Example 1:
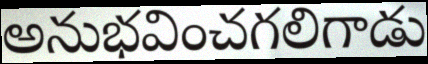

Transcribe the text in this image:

అనుభవించగలిగాడు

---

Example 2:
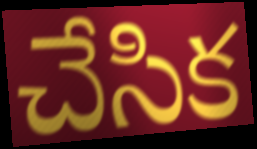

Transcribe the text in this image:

చేసిక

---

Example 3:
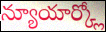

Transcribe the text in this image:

న్యూయార్క్లో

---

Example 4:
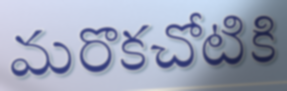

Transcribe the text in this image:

మరొకచోటికి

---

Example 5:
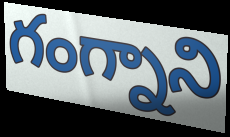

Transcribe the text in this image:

గంగ్నాని